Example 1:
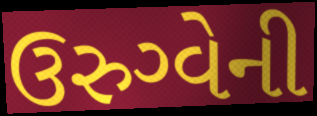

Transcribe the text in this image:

ઉરુગ્વેની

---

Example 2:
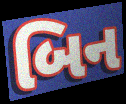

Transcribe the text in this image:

બિન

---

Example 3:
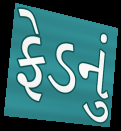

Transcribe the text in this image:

ફેડનું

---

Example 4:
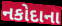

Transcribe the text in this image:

નકોદાના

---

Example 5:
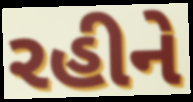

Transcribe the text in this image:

રહીને